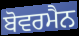
ਬੋਵਰਮੈਨ